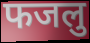
फजलु